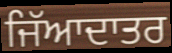
ਜਿੱਆਦਾਤਰ